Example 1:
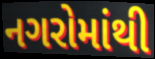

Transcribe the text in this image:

નગરોમાંથી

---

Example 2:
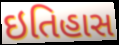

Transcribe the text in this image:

ઇતિહાસ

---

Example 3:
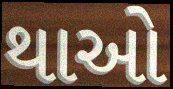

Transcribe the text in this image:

થાઓ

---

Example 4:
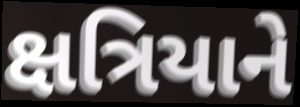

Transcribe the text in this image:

ક્ષત્રિયાને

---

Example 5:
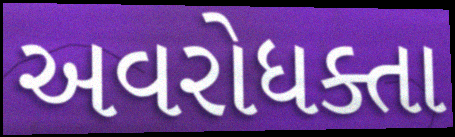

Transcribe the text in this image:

અવરોધક્તા